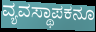
ವ್ಯವಸ್ಥಾಪಕನೂ